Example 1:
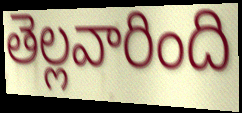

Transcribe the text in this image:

తెల్లవారింది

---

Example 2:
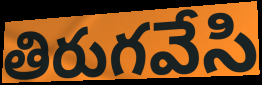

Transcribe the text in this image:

తిరుగవేసి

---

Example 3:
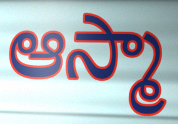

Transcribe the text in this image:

ఆస్మా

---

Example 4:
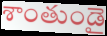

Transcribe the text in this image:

శాంతుండై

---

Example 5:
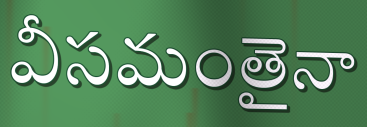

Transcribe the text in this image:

వీసమంతైనా